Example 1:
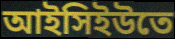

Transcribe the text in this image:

আইসিইউতে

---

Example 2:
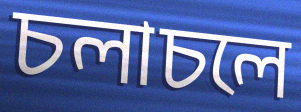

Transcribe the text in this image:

চলাচলে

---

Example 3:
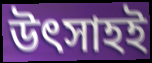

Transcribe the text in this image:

উৎসাহই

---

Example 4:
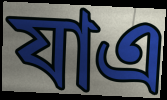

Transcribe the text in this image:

যাএ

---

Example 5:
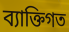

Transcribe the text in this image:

ব্যাক্তিগত